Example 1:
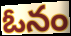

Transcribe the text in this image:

ఓనం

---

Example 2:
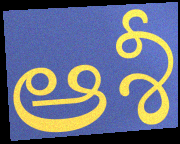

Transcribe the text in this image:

ఆశీ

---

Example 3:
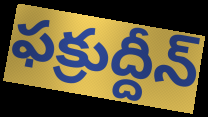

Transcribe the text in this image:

ఫక్రుద్దీన్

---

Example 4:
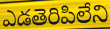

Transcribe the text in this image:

ఎడతెరిపిలేని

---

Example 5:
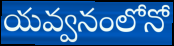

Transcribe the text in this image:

యవ్వనంలోనో